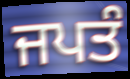
ਜਪਤੰ